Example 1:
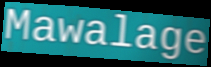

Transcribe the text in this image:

Mawalage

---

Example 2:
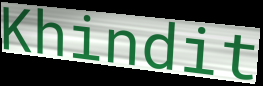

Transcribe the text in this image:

Khindit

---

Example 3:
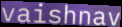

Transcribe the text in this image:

vaishnav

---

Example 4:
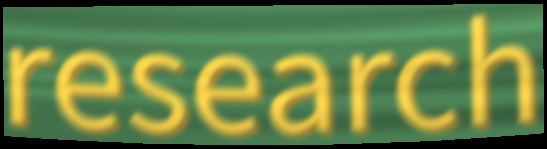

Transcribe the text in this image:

research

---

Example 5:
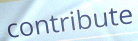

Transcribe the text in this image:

contribute